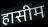
हासीम